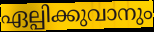
ഏല്പിക്കുവാനും